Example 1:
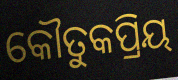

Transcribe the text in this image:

କୌତୁକପ୍ରିୟ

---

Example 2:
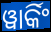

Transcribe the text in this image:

ୱାର୍କିଂ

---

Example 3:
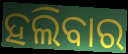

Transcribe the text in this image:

ହଲିବାର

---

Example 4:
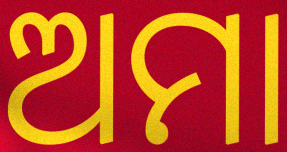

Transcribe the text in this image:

ଅମା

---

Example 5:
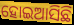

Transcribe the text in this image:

ହୋଇଆସିଛି